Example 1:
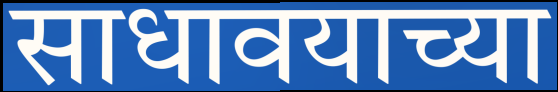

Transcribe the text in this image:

साधावयाच्या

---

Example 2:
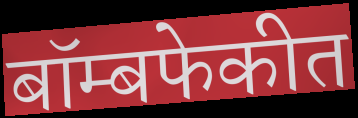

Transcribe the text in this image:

बॉम्बफेकीत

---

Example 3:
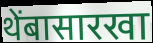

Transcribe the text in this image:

थेंबासारखा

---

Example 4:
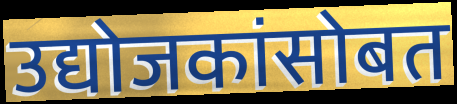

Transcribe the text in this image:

उद्योजकांसोबत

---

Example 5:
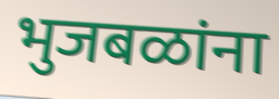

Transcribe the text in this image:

भुजबळांना